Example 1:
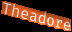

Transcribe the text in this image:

Theadore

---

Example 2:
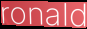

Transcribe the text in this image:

ronald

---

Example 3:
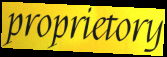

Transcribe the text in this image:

proprietory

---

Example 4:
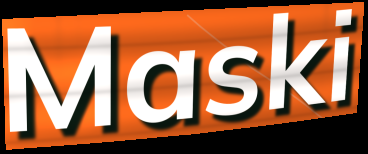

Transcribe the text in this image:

Maski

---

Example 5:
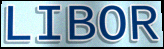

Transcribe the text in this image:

LIBOR